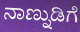
ನಾಣ್ನುಡಿಗೆ